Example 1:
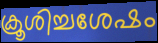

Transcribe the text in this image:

ക്രൂശിച്ചശേഷം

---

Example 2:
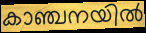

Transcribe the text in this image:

കാഞ്ചനയിൽ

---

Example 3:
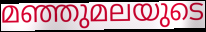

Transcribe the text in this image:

മഞ്ഞുമലയുടെ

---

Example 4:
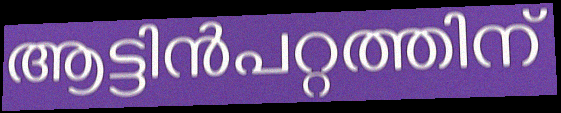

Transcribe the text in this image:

ആട്ടിൻപറ്റത്തിന്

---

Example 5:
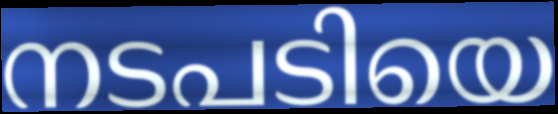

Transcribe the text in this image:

നടപടിയെ